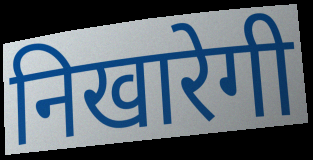
निखारेगी